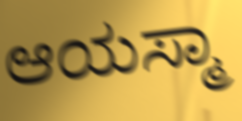
ಆಯಸ್ಮಾ